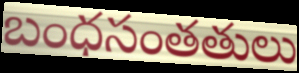
బంధసంతతులు